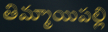
తిమ్మాయిపల్లి